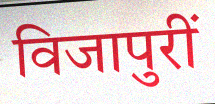
विजापुरीं